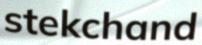
stekchand